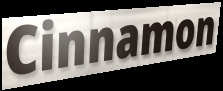
Cinnamon